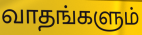
வாதங்களும்